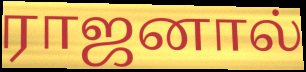
ராஜனால்